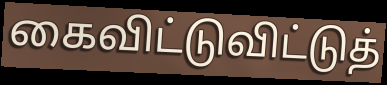
கைவிட்டுவிட்டுத்